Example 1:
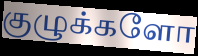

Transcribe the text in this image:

குழுக்களோ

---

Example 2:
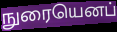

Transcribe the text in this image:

நுரையெனப்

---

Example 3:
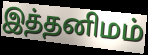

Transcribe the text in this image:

இத்தனிமம்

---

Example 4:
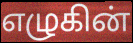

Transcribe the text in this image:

எழுகின்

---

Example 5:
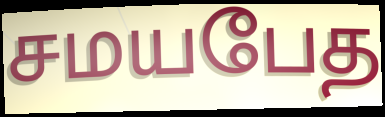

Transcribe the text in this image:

சமயபேத